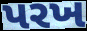
પરખ